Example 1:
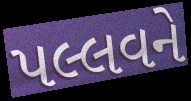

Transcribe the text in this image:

પલ્લવને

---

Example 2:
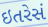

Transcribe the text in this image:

ઇતરેસં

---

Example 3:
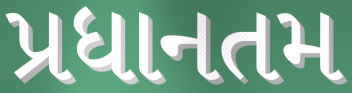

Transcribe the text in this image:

પ્રધાનતમ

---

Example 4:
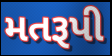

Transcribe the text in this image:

મતરૂપી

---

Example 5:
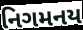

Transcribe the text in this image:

નિગમનય